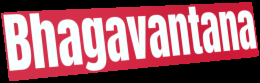
Bhagavantana